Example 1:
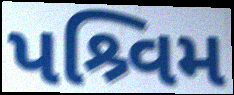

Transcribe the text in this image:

પશ્ર્વિમ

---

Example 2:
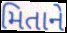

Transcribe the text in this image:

મિતાને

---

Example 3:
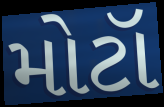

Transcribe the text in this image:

મોટૉ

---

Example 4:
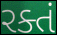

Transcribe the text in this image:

રક્તં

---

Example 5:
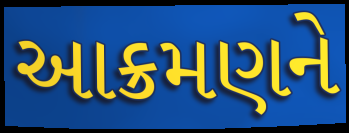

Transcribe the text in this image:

આક્રમણને